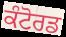
ਕੰਟੋਰਡ